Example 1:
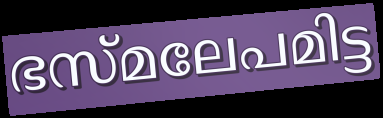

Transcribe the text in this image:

ഭസ്മലേപമിട്ട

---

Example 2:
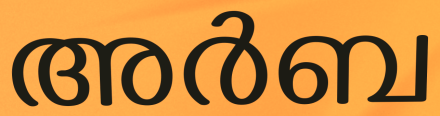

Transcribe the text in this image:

അർബ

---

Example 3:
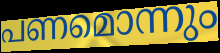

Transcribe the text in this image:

പണമൊന്നും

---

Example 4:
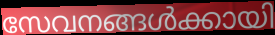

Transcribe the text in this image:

സേവനങ്ങൾക്കായി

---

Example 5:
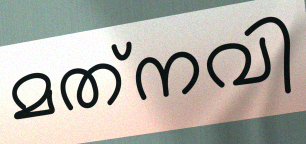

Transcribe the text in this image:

മത്‌നവി